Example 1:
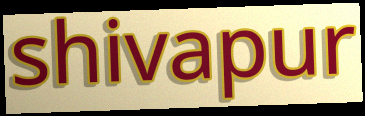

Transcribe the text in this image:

shivapur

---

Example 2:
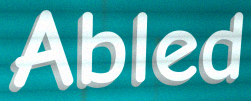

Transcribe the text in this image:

Abled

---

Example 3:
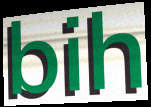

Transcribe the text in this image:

bih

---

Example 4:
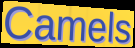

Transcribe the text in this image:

Camels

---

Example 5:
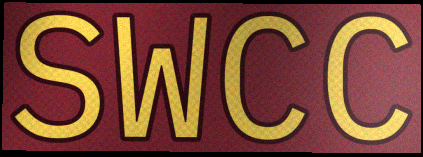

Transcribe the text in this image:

SWCC